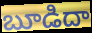
బూడిదా